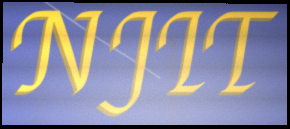
NJIT